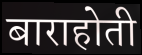
बाराहोती